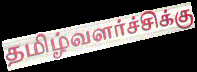
தமிழ்வளர்ச்சிக்கு